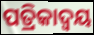
ପତ୍ରିକାଦ୍ୱୟ